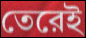
তেরেই